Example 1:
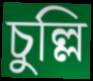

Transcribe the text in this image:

চুল্লি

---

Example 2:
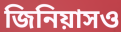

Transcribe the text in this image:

জিনিয়াসও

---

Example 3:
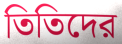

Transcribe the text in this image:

তিতিদের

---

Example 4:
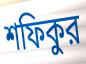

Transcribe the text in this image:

শফিকুর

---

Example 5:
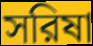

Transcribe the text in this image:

সরিষা